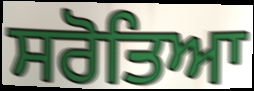
ਸਰੋਤਿਆ